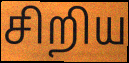
சிறிய